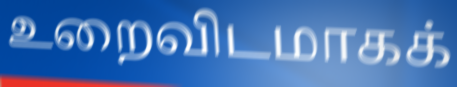
உறைவிடமாகக்